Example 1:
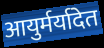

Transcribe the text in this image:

आयुर्मर्यादेत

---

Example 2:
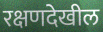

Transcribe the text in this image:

रक्षणदेखील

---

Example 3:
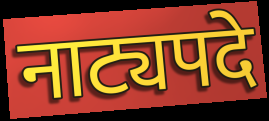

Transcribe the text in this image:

नाट्यपदे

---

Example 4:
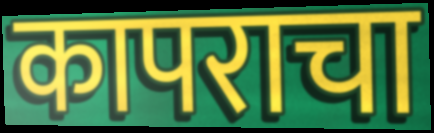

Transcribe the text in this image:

कापराचा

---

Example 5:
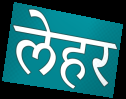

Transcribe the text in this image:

लेहर